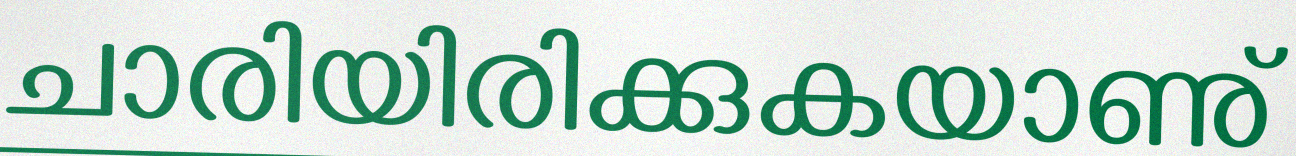
ചാരിയിരിക്കുകയാണു്